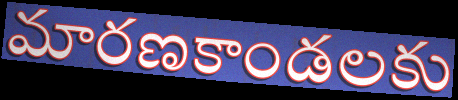
మారణకాండలకు